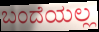
ಬಂದೆಯಲ್ಲ